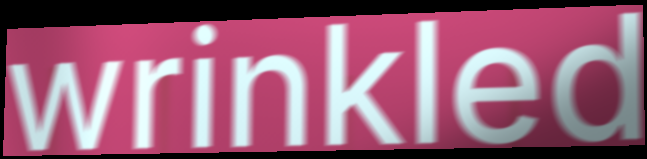
wrinkled